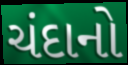
ચંદાનો